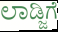
ಲಾಡ್ಜಿಗೆ